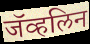
जॅव्हलिन